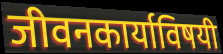
जीवनकार्याविषयी